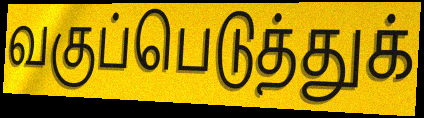
வகுப்பெடுத்துக்